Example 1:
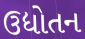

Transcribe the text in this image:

ઉદ્યોતન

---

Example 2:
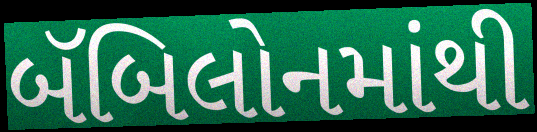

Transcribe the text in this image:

બૅબિલોનમાંથી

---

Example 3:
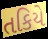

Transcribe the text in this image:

તકિયે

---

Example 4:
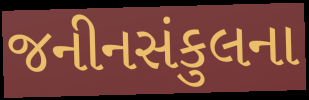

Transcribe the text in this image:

જનીનસંકુલના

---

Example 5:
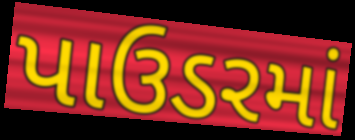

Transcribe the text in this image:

પાઉડરમાં